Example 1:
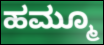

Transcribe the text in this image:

ಹಮ್ಮೂ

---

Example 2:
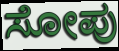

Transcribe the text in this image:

ಸೋಪು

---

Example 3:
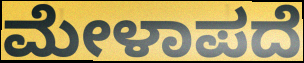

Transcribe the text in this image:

ಮೇಳಾಪದೆ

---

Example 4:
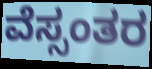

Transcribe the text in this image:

ವೆಸ್ಸಂತರ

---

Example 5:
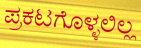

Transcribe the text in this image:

ಪ್ರಕಟಗೊಳ್ಳಲಿಲ್ಲ